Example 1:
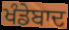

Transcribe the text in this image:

ਖੰਡੇਬਾਦ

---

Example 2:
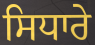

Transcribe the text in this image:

ਸਿਧਾਰੇ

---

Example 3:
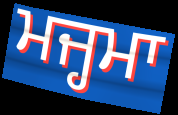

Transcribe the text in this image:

ਮਜ੍ਹਮਾ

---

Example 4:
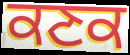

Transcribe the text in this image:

ਕਣਕ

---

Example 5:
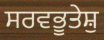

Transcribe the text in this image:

ਸਰਵਭੂਤੇਸ਼ੁ